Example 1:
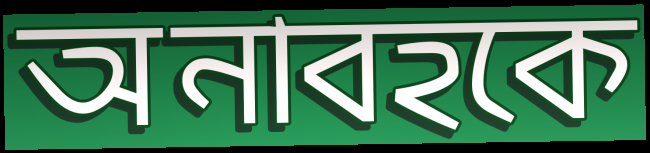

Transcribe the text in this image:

অনাবহকে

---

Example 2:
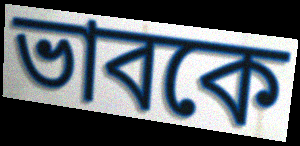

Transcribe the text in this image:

ভাবকে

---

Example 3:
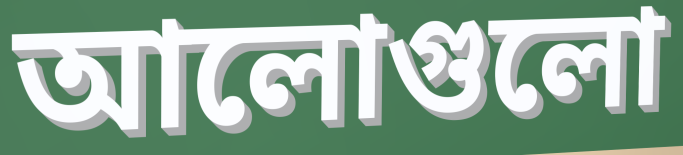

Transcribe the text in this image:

আলোগুলো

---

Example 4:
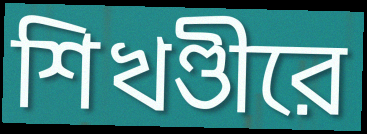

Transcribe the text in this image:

শিখণ্ডীরে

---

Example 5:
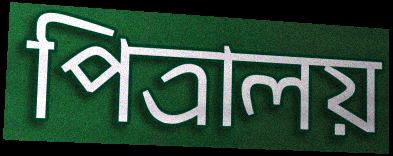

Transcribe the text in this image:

পিত্রালয়